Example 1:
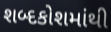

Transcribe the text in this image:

શબ્દકોશમાંથી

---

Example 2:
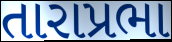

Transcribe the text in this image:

તારાપ્રભા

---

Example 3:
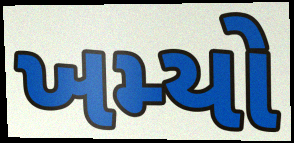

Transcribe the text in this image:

ખમ્યો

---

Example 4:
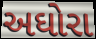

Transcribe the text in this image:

અઘોરા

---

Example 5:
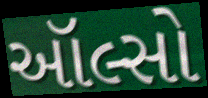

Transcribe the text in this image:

ઑલ્સો